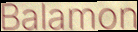
Balamon